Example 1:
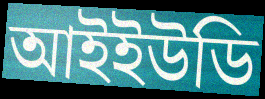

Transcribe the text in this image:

আইইউডি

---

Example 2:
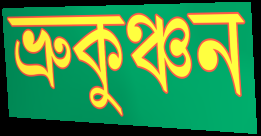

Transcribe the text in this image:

ভ্রুকুঞ্চন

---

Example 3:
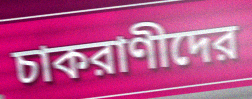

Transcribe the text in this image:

চাকরাণীদের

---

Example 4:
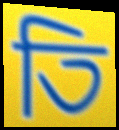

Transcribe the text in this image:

তি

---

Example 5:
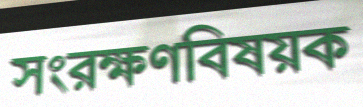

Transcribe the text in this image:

সংরক্ষণবিষয়ক